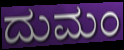
ದುಮಂ